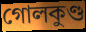
গোলকুণ্ড